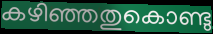
കഴിഞ്ഞതുകൊണ്ടു